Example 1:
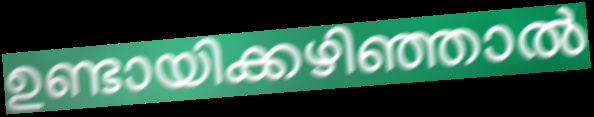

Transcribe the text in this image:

ഉണ്ടായിക്കഴിഞ്ഞാൽ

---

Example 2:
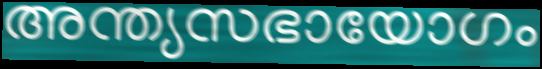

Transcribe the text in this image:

അന്ത്യസഭായോഗം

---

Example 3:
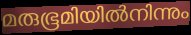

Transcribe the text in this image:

മരുഭൂമിയിൽനിന്നും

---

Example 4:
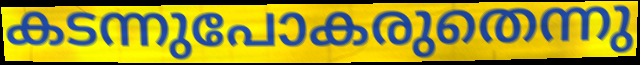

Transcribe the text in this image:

കടന്നുപോകരുതെന്നു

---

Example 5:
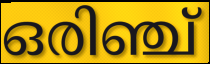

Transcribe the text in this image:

ഒരിഞ്ച്